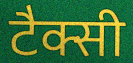
टैक्सी